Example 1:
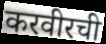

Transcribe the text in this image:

करवीरची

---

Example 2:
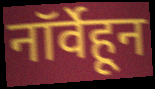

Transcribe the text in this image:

नॉर्वेहून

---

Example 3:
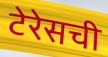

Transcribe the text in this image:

टेरेसची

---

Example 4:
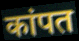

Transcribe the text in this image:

कांपत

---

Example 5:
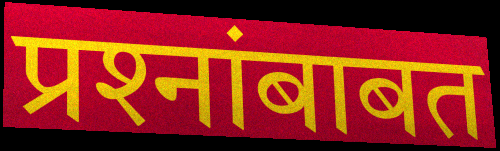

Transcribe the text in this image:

प्रश्‍नांबाबत